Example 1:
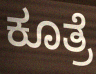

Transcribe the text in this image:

ಕೂತ್ರೆ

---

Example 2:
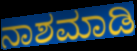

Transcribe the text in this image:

ನಾಶಮಾಡಿ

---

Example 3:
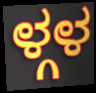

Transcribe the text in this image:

ಳ್ಗಳ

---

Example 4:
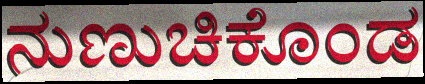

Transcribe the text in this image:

ನುಣುಚಿಕೊಂಡ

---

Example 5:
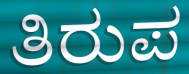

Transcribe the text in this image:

ತಿರುಪ